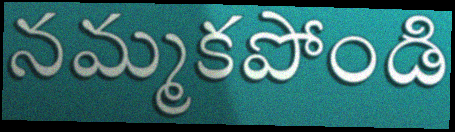
నమ్మకపోండి